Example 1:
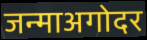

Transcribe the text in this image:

जन्माअगोदर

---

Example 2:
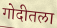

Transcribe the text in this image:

गोदीतला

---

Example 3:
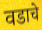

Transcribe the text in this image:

वडाचे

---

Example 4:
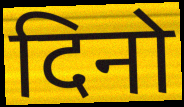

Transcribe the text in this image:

दिनो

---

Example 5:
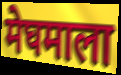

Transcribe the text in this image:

मेघमाला